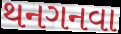
થનગનવા